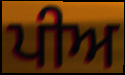
ਪੀਅ